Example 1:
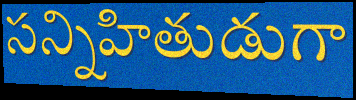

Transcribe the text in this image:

సన్నిహితుడుగా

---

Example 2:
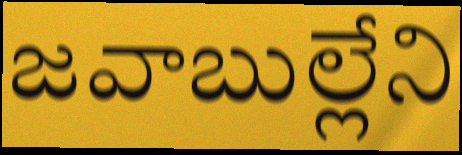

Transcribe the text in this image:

జవాబుల్లేని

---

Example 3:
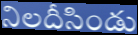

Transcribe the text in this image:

నిలదీసిండు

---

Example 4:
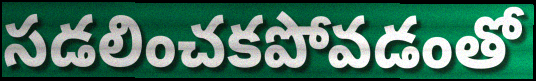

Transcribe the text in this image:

సడలించకపోవడంతో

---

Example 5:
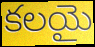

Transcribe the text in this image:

కలయై